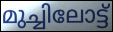
മുച്ചിലോട്ട്